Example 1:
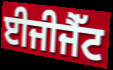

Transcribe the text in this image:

ਈਜੀਜੈੱਟ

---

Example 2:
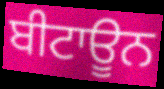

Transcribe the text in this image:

ਬੀਟਾਊਨ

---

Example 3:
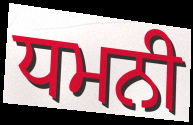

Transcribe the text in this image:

ਧਮਨੀ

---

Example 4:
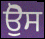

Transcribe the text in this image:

ਉੋਸ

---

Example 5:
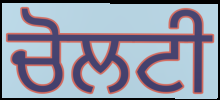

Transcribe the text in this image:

ਚੋਲਟੀ